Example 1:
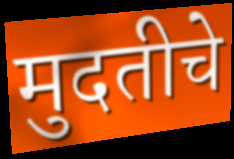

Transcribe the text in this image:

मुदतीचे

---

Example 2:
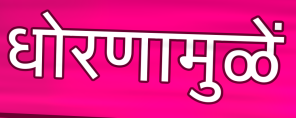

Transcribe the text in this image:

धोरणामुळें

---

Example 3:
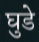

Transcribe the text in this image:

घुडे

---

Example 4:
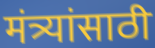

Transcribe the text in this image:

मंत्र्यांसाठी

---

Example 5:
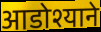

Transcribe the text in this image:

आडोश्याने